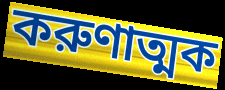
করুণাত্মক